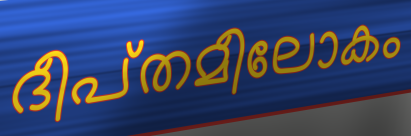
ദീപ്‌തമീലോകം